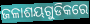
ଜଳାଶୟଗୁଡିକରେ